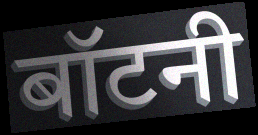
बॉटनी